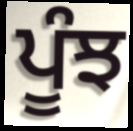
ਪੂੰਝ